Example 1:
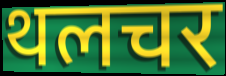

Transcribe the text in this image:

थलचर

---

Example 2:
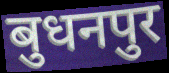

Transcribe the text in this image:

बुधनपुर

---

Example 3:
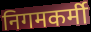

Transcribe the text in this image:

निगमकर्मी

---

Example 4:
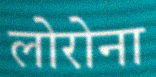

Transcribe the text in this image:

लोरोना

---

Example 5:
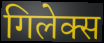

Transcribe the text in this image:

गिलेक्स